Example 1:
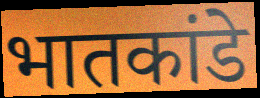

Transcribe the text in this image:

भातकांडे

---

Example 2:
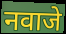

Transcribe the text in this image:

नवाजे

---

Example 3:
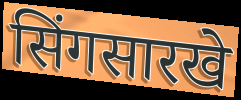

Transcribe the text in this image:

सिंगसारखे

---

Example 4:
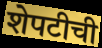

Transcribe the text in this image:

शेपटीची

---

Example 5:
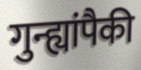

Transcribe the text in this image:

गुन्ह्यांपैकी